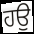
ਹਉ